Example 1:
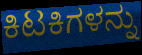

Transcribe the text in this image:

ಕಿಟಕಿಗಳನ್ನು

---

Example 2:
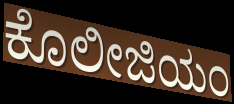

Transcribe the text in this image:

ಕೊಲೀಜಿಯಂ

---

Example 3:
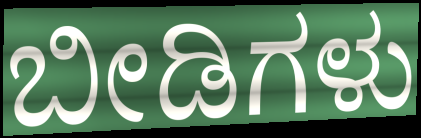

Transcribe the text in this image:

ಬೀಡಿಗಳು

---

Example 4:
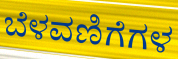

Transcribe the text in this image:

ಬೆಳವಣಿಗೆಗಳ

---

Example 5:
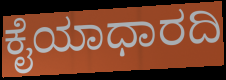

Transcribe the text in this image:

ಕೈಯಾಧಾರದಿ